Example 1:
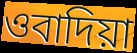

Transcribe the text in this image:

ওবাদিয়া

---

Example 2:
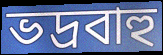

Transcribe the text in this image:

ভদ্রবাহু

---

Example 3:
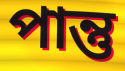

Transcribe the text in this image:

পান্তু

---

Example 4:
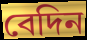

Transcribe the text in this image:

বেদিন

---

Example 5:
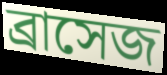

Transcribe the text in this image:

ব্রাসেজ